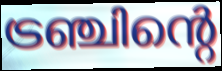
ട്രഞ്ചിന്റെ